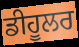
ਡੀਹੂਲਰ